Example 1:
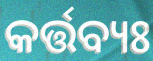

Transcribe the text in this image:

କର୍ତ୍ତବ୍ୟଃ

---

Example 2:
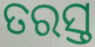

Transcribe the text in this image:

ତରସ୍ତ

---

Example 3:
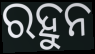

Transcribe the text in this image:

ରହୁନ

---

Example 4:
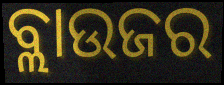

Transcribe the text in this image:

ବ୍ଲାଉଜର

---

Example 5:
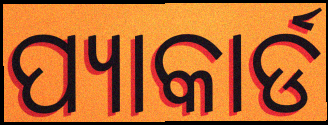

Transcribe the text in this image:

ପ୍ୟାକାର୍ଡ